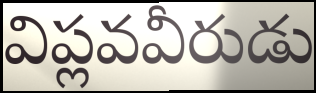
విప్లవవీరుడు